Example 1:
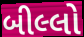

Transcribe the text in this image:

બીલ્લો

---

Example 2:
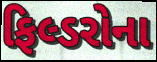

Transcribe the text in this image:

ફિલ્ડરોના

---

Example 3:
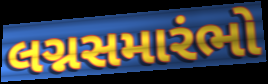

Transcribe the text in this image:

લગ્નસમારંભો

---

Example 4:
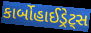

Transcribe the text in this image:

કાર્બોહાઈડ્રેટ્સ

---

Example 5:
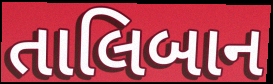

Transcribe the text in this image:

તાલિબાન